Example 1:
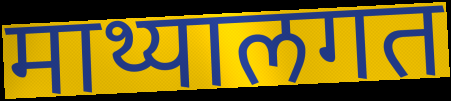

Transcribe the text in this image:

माथ्यालगत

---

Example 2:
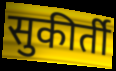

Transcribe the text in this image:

सुकीर्ती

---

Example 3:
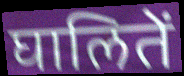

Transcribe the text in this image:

घालितें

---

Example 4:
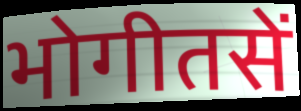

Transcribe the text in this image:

भोगीतसें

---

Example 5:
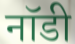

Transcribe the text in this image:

नॉडी